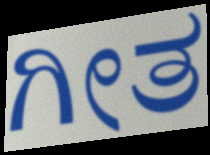
ಗೀತ